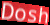
Dosh